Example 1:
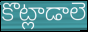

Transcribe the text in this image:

కొట్లాడాలె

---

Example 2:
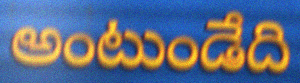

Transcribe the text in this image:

అంటుండేది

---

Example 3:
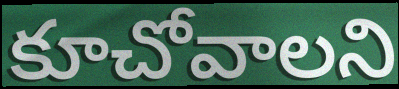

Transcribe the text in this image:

కూచోవాలని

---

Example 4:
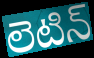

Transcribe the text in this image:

లెటిన్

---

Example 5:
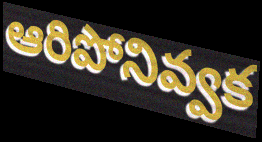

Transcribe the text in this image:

ఆరిపోనివ్వక